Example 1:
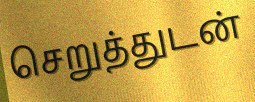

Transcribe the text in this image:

செறுத்துடன்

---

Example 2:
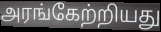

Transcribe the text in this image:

அரங்கேற்றியது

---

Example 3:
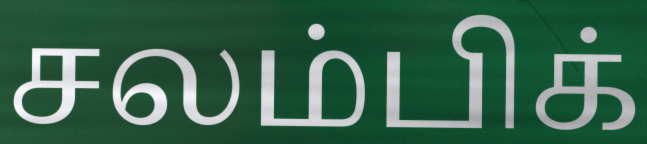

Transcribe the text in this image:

சலம்பிக்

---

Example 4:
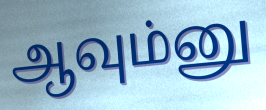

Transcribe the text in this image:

ஆவும்னு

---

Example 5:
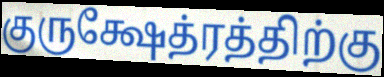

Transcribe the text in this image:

குருக்ஷேத்ரத்திற்கு